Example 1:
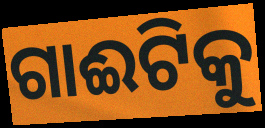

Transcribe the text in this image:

ଗାଈଟିକୁ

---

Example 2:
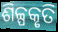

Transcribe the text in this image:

ଶିଳ୍ପକୃତି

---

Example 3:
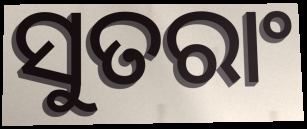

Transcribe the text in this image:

ସୁତରାଂ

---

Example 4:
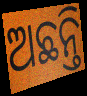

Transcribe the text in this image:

ଅଛନ୍ତି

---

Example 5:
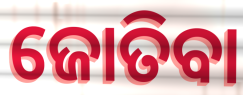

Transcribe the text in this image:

ଜୋତିବା